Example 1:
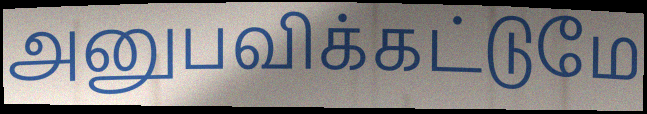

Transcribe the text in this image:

அனுபவிக்கட்டுமே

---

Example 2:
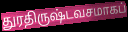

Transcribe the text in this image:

துரதிருஷ்டவசமாகப்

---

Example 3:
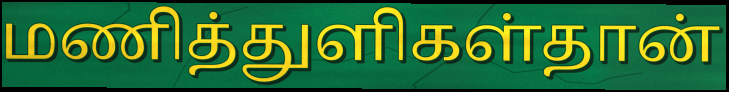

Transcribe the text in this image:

மணித்துளிகள்தான்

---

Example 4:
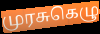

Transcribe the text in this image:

முரசுகெழு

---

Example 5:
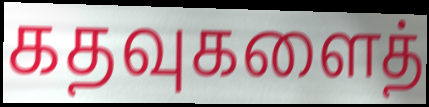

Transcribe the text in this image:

கதவுகளைத்